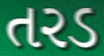
તરડ